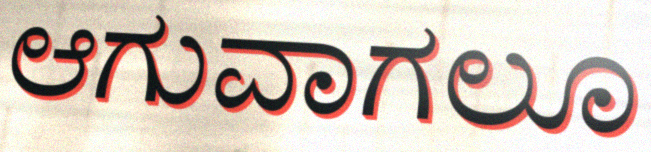
ಆಗುವಾಗಲೂ